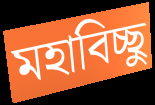
মহাবিচ্ছু